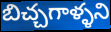
బిచ్చగాళ్ళని